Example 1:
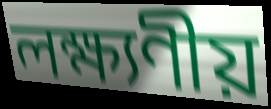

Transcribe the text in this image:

লক্ষ্যণীয়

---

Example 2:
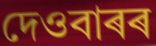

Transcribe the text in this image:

দেওবাৰৰ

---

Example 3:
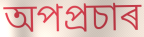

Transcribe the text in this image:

অপপ্ৰচাৰ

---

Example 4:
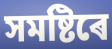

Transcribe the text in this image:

সমষ্টিৰে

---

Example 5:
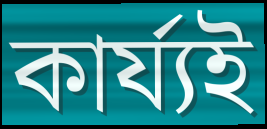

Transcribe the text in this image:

কাৰ্য্যই